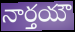
నార్తయౌ